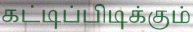
கட்டிப்பிடிக்கும்